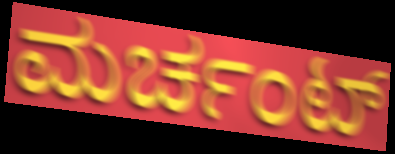
ಮರ್ಚಂಟ್